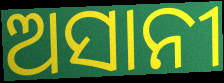
ଅସାନୀ